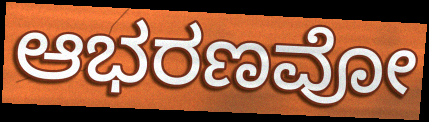
ಆಭರಣವೋ